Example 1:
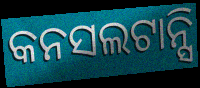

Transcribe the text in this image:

କନସଲଟାନ୍ସି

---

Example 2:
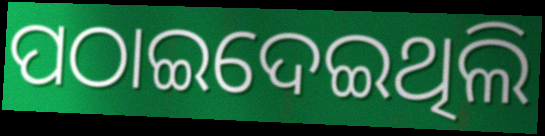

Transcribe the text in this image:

ପଠାଇଦେଇଥିଲି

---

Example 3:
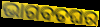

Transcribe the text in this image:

ଭାଗବତଘର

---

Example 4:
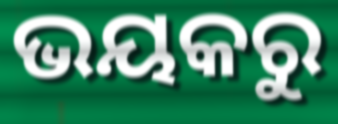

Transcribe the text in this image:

ଭୟକରୁ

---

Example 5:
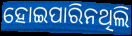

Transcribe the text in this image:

ହୋଇପାରିନଥିଲି